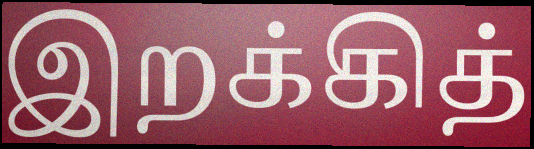
இறக்கித்